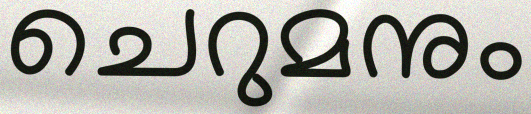
ചെറുമനും